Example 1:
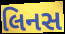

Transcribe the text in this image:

લિનસ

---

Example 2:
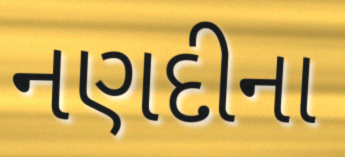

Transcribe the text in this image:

નણદીના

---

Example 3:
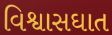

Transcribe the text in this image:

વિશ્વાસઘાત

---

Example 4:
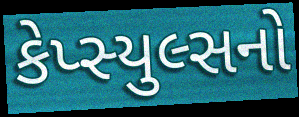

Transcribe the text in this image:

કેપ્સ્યુલ્સનો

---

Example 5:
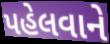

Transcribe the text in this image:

પહેલવાને